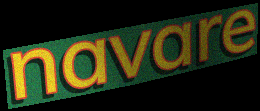
navare